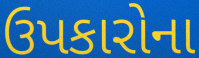
ઉપકારોના